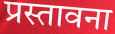
प्रस्तावना